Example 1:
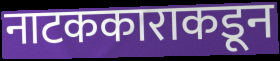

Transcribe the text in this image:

नाटककाराकडून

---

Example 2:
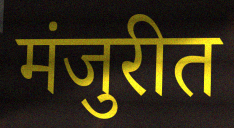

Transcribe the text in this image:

मंजुरीत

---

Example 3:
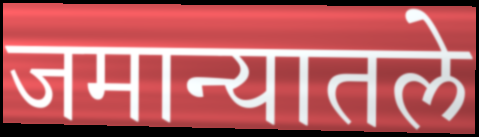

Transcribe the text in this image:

जमान्यातले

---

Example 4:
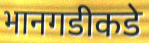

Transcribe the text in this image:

भानगडीकडे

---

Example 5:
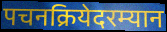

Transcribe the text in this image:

पचनक्रियेदरम्यान